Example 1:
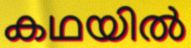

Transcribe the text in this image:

കഥയിൽ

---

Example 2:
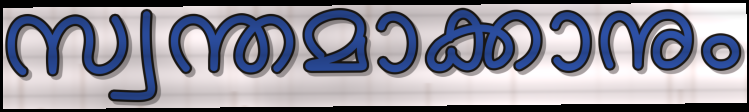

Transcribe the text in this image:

സ്വന്തമാക്കാനും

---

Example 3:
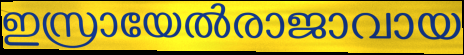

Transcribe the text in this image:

ഇസ്രായേൽരാജാവായ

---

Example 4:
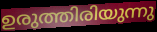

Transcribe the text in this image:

ഉരുത്തിരിയുന്നു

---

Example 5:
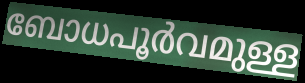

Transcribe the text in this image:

ബോധപൂർവമുള്ള